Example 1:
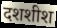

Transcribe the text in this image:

दशशीश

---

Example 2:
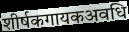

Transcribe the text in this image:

शीर्षकगायकअवधि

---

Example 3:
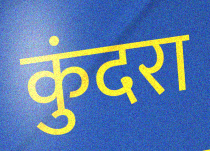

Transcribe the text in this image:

कुंदरा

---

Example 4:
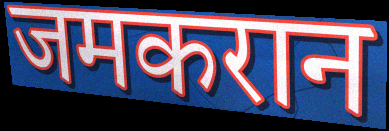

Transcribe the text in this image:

जमकरान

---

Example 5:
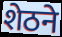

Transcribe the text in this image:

शेठने